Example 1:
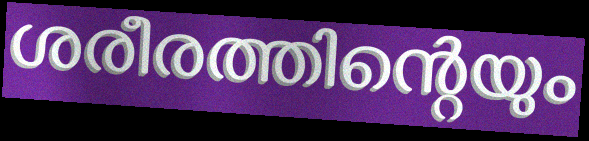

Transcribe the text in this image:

ശരീരത്തിന്റെയും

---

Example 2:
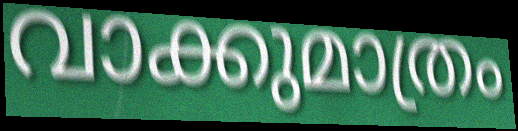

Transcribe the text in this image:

വാക്കുമാത്രം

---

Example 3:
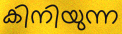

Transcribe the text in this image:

കിനിയുന്ന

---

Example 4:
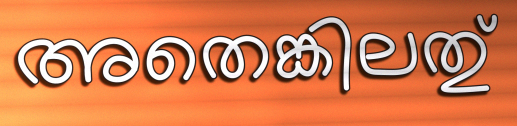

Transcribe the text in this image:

അതെങ്കിലതു്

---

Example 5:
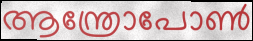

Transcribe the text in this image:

ആന്ത്രോപോൺ